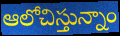
ఆలోచిస్తున్నాం